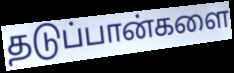
தடுப்பான்களை